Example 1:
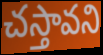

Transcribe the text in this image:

చస్తావని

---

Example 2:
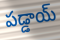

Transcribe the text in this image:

పడ్డాయ్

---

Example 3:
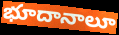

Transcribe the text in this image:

భూదానాలూ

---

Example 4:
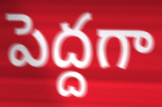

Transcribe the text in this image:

పెద్దగా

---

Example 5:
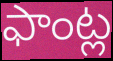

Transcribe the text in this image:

ఫాంట్ల